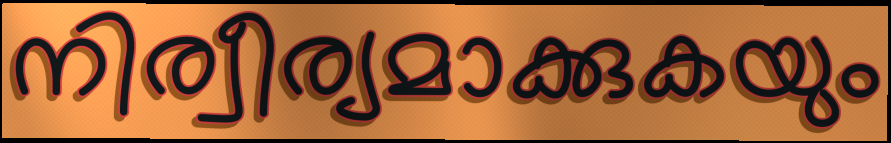
നിര്വീര്യമാക്കുകയും